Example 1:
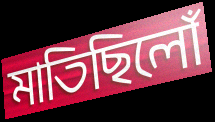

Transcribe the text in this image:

মাতিছিলোঁ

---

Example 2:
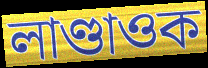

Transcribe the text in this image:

লাণ্ডাওক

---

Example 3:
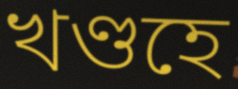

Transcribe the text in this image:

খণ্ডহে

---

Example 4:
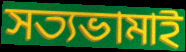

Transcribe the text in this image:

সত্যভামাই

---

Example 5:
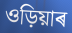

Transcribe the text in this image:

ওড়িয়াৰ